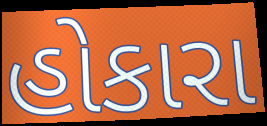
હોકારા